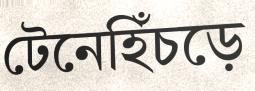
টেনেহিঁচড়ে